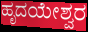
ಹೃದಯೇಶ್ವರ